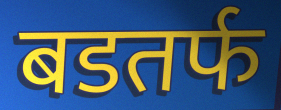
बडतर्फ